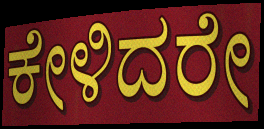
ಕೇಳಿದರೇ